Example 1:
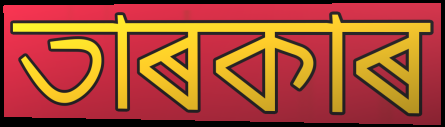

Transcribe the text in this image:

তাৰকাৰ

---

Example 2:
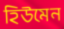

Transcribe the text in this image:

হিউমেন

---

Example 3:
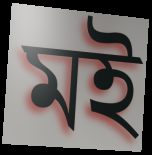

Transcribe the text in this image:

মই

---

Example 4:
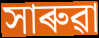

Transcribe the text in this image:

সাৰুৱা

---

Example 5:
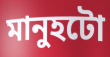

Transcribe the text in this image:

মানুহটো